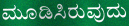
ಮೂಡಿಸಿರುವುದು